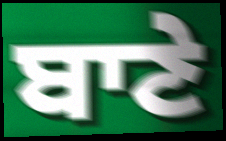
ਬਾਣੇ